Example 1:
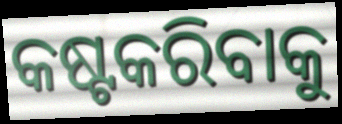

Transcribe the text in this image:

କଷ୍ଟକରିବାକୁ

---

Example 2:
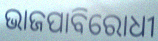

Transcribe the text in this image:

ଭାଜପାବିରୋଧୀ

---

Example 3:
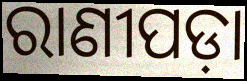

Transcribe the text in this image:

ରାଣୀପଡ଼ା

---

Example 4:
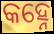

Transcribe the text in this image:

କହ୍ନେ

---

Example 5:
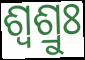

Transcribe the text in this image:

ଶ୍ଵଶ୍ରୁଃ